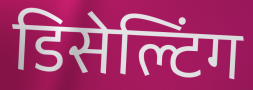
डिसेल्टिंग